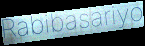
Rabibasariyo